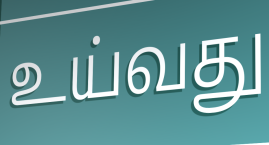
உய்வது